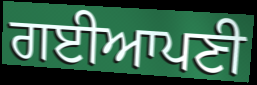
ਗਈਆਪਣੀ